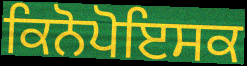
ਕਿਨੋਪੋਇਸਕ